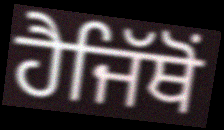
ਹੈਜਿੱਥੋਂ